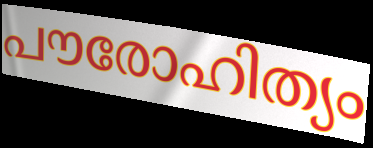
പൗരോഹിത്യം